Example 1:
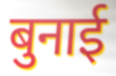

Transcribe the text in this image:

बुनाई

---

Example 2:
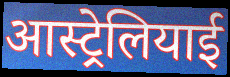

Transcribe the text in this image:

आस्ट्रेलियाई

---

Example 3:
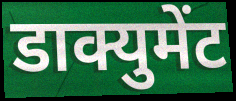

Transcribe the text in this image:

डाक्युमेंट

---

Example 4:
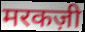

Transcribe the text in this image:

मरकज़ी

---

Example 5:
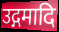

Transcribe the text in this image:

उद्गमादि